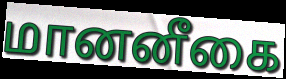
மானனீகை